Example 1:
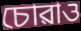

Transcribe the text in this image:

চোৱাও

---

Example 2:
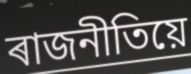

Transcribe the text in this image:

ৰাজনীতিয়ে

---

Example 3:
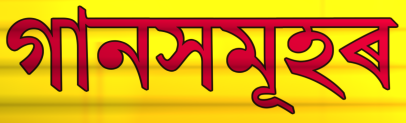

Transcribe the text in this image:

গানসমূহৰ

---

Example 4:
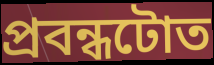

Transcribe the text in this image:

প্ৰবন্ধটোত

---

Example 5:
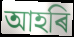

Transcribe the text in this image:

আহৰি